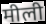
मीली